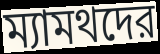
ম্যামথদের